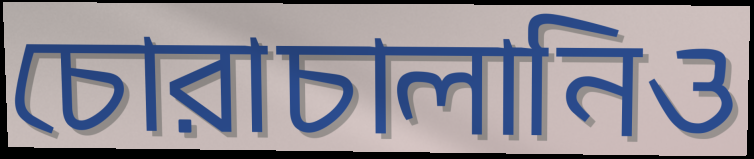
চোরাচালানিও